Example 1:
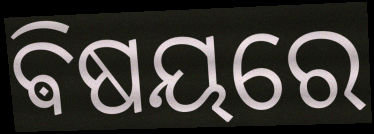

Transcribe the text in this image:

ଵିଷୟରେ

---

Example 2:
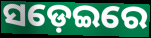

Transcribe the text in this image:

ସଡ଼େଇରେ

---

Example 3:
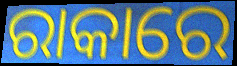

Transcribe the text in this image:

ରାକାରେ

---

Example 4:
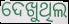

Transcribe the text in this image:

ଦେଖୁଥିଲ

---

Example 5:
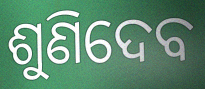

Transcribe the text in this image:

ଶୁଣିଦେବ